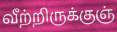
வீற்றிருக்குஞ்